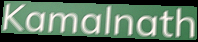
Kamalnath